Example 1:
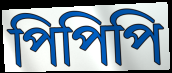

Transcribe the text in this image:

পিপিপি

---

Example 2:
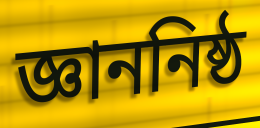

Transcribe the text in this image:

জ্ঞাননিষ্ঠ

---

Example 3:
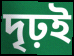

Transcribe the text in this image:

দৃঢ়ই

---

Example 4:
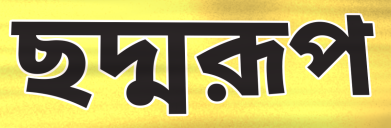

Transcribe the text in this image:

ছদ্মরূপ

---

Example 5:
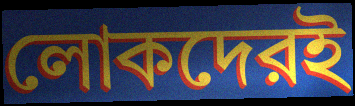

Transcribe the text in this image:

লোকদেরই